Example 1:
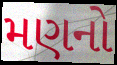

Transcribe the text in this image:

મણનો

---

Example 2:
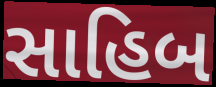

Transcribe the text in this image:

સાહિબ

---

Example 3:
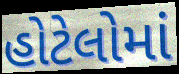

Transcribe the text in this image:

હોટેલોમાં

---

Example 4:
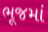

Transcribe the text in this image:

ભૂજમાં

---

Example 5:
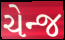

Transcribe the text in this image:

ચેન્જ